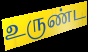
உருண்ட